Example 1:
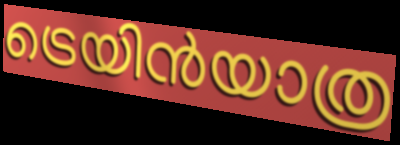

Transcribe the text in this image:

ട്രെയിൻയാത്ര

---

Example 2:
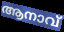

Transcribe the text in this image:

ആനാവ്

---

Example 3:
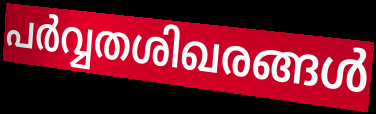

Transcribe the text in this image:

പർവ്വതശിഖരങ്ങൾ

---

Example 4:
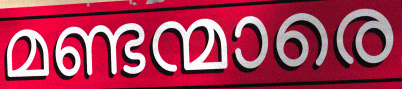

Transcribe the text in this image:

മണ്ടന്മാരെ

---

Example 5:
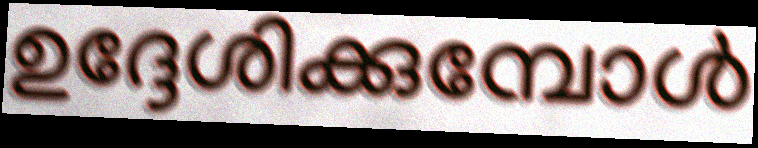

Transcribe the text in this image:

ഉദ്ദേശിക്കുമ്പോൾ